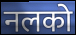
नलको